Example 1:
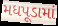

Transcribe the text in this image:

મધપૂડામાં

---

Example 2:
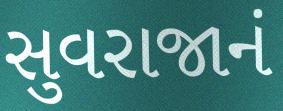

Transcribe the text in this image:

સુવરાજાનં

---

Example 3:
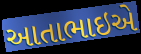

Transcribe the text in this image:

આતાભાઇએ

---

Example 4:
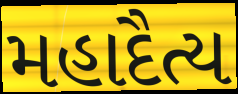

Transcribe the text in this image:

મહાદૈત્ય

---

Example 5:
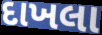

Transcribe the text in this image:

દાખલા